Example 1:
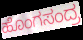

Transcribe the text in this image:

ಹೊಂಗಸಂದ್ರ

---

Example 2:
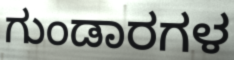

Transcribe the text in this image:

ಗುಂಡಾರಗಳ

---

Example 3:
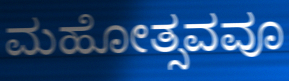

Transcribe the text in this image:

ಮಹೋತ್ಸವವೂ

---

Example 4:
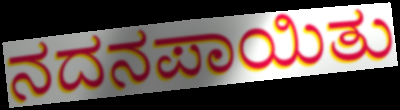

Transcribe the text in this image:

ನದನಪಾಯಿತು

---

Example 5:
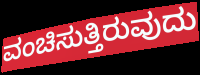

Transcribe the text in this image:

ವಂಚಿಸುತ್ತಿರುವುದು